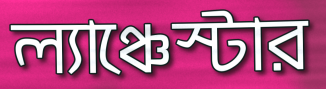
ল্যাঞ্চেস্টার